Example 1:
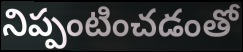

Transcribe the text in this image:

నిప్పంటించడంతో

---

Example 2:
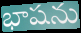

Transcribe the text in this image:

భాషను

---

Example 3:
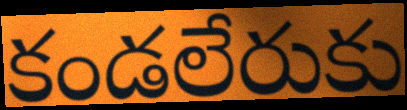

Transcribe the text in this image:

కండలేరుకు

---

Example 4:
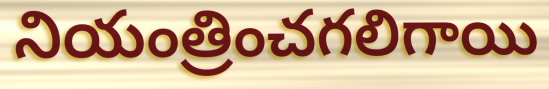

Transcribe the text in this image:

నియంత్రించగలిగాయి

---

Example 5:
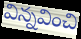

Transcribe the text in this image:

విన్నవించి